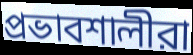
প্রভাবশালীরা